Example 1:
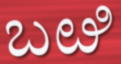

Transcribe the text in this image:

ಬೞಿ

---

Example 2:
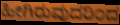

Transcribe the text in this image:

ಹೀಗಿರುವುದರಿಂದ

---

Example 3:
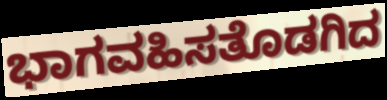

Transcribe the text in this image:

ಭಾಗವಹಿಸತೊಡಗಿದ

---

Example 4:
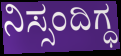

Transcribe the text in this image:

ನಿಸ್ಸಂದಿಗ್ಧ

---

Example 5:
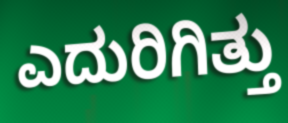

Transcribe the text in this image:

ಎದುರಿಗಿತ್ತು